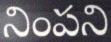
నింపని